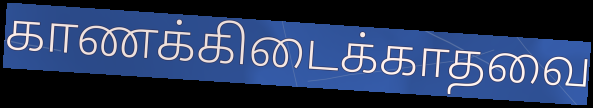
காணக்கிடைக்காதவை